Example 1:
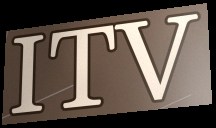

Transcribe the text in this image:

ITV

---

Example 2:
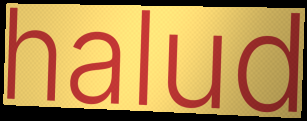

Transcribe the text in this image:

halud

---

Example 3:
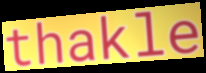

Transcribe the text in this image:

thakle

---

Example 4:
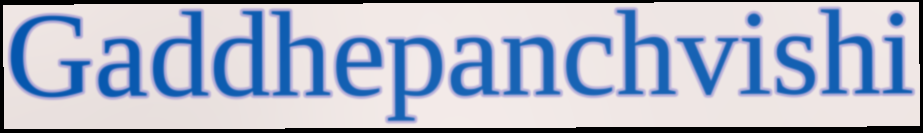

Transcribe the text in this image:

Gaddhepanchvishi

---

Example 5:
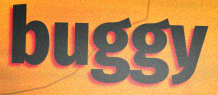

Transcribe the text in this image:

buggy